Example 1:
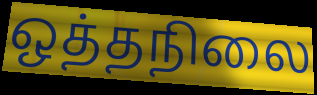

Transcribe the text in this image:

ஒத்தநிலை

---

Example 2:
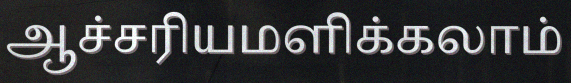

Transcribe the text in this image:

ஆச்சரியமளிக்கலாம்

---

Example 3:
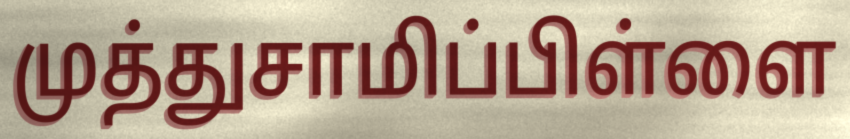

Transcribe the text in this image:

முத்துசாமிப்பிள்ளை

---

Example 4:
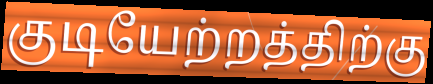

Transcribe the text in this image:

குடியேற்றத்திற்கு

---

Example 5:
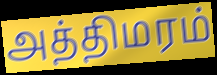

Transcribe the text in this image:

அத்திமரம்